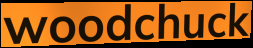
woodchuck